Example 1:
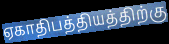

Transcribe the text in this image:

ஏகாதிபத்தியத்திற்கு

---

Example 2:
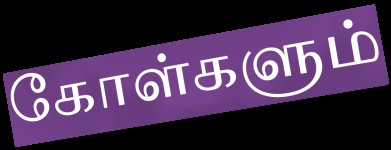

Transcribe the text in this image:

கோள்களும்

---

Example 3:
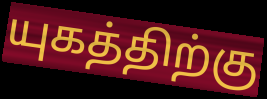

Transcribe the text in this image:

யுகத்திற்கு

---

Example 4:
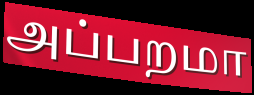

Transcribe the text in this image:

அப்பறமா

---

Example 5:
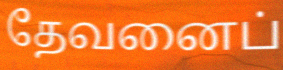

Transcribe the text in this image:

தேவனைப்